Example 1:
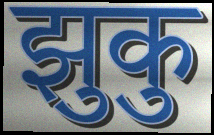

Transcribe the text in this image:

झुकु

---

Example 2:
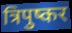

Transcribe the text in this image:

त्रिपुष्कर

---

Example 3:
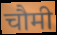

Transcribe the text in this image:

चौमी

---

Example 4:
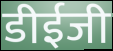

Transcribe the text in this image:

डीईजी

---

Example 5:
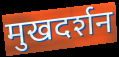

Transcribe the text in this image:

मुखदर्शन